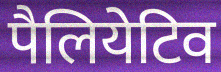
पैलियेटिव